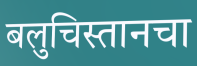
बलुचिस्तानचा